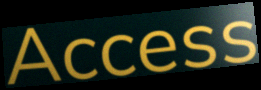
Access